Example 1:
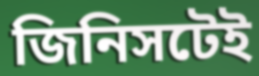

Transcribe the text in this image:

জিনিসটেই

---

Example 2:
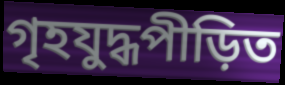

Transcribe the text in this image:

গৃহযুদ্ধপীড়িত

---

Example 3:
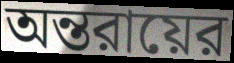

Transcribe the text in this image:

অন্তরায়ের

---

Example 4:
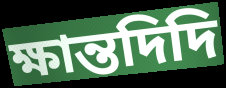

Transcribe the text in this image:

ক্ষান্তদিদি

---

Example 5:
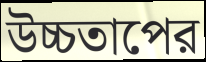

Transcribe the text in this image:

উচ্চতাপের